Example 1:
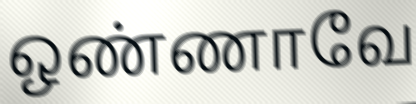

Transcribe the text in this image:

ஒண்ணாவே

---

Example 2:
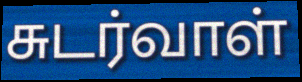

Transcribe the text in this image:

சுடர்வாள்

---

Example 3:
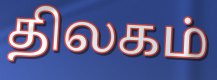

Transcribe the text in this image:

திலகம்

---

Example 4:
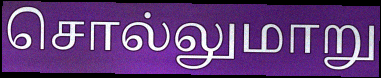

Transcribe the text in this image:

சொல்லுமாறு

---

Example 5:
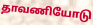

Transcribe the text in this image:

தாவணியோடு